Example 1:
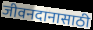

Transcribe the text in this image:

जीवनदानासाठी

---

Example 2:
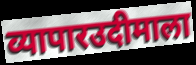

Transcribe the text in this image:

व्यापारउदीमाला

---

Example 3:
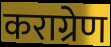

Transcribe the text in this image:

कराग्रेण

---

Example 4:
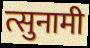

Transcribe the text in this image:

त्सुनामी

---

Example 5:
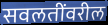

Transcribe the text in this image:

सवलतींवरील